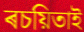
ৰচয়িতাই